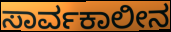
ಸಾರ್ವಕಾಲೀನ